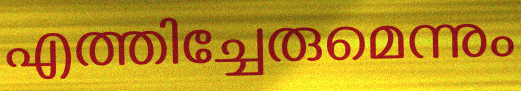
എത്തിച്ചേരുമെന്നും